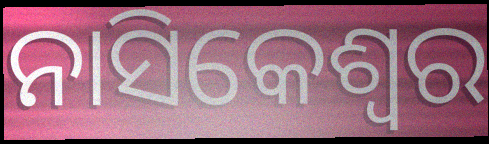
ନାସିକେଶ୍ୱର